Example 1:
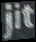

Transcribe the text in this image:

jit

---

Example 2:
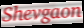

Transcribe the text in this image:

Shevgaon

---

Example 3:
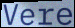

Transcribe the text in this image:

Vere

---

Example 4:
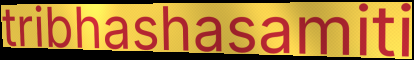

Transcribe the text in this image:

tribhashasamiti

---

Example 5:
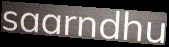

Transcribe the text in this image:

saarndhu